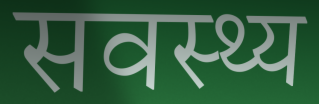
सवस्थ्य